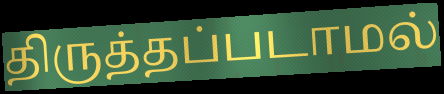
திருத்தப்படாமல்